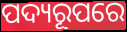
ପଦ୍ୟରୂପରେ